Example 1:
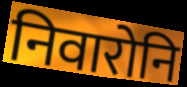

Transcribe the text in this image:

निवारोनि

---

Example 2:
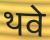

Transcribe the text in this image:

थवे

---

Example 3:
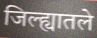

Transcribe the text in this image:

जिल्ह्यातले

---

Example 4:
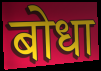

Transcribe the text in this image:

बोधा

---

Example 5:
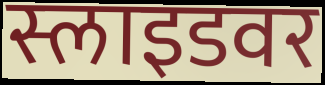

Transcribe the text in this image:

स्‍लाइडवर